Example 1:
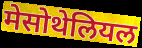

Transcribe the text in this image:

मेसोथेलियल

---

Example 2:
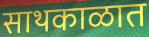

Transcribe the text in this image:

साथकाळात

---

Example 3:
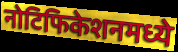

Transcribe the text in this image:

नोटिफिकेशनमध्ये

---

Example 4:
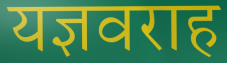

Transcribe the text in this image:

यज्ञवराह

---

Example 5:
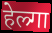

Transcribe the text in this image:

हेल्गा